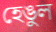
হেঙুল